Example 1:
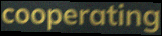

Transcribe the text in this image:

cooperating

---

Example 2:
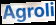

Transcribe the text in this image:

Agroli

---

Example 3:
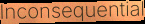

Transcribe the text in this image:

Inconsequential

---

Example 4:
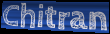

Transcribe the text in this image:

Chitran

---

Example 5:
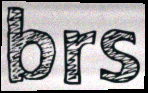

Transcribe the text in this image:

brs